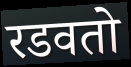
रडवतो